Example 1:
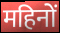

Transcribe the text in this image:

महिनों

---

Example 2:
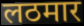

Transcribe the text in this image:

लठमार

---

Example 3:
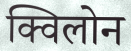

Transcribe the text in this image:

क्विलोन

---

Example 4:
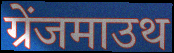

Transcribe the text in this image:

ग्रेंजमाउथ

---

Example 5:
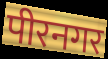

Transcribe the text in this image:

पीरनगर